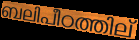
ബലിപീഠത്തില്